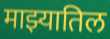
माझ्यातिल